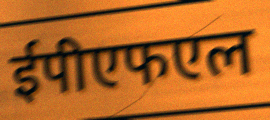
ईपीएफएल